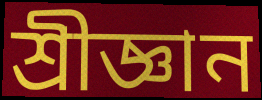
শ্ৰীজ্ঞান